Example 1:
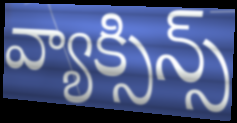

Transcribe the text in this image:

వ్యాక్సిన్స్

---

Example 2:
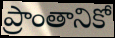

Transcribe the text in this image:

ప్రాంతానికో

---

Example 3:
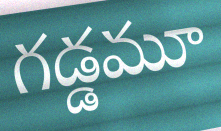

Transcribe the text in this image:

గడ్డమూ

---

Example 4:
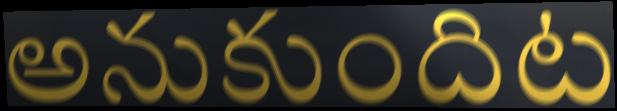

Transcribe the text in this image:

అనుకుందిట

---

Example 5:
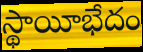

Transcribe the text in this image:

స్థాయీభేదం